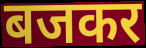
बजकर